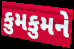
કુમકુમને